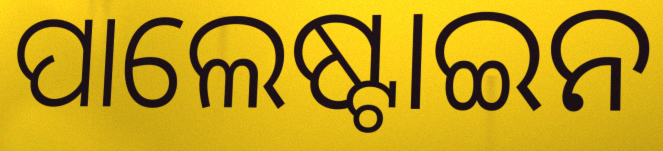
ପାଲେଷ୍ଟାଇନ